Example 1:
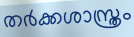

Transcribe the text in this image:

തർക്കശാസ്ത്രം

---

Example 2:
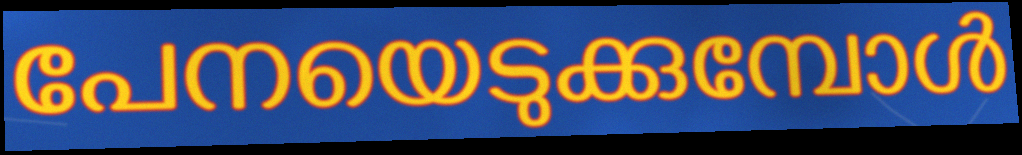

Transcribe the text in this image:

പേനയെടുക്കുമ്പോൾ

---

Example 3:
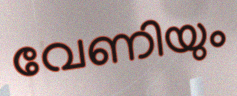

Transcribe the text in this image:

വേണിയും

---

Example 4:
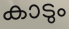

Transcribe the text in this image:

കാടും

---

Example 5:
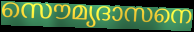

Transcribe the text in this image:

സൌമ്യദാസനെ